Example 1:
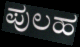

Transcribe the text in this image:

ಪುಲಹ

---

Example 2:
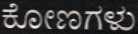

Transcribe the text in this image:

ಕೋಣಗಳು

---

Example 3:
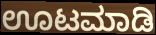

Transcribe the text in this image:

ಊಟಮಾಡಿ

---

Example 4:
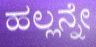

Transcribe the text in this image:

ಹಲ್ಲನ್ನೇ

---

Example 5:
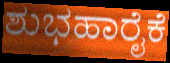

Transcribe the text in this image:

ಶುಭಹಾರೈಕೆ